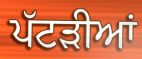
ਪੱਟੜੀਆਂ